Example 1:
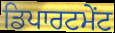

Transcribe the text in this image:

ਡਿਪਾਰਟਮੇਂਟ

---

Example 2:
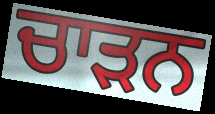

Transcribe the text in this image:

ਚਾੜਨ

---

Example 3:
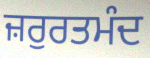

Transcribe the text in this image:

ਜ਼ਰੁਰਤਮੰਦ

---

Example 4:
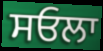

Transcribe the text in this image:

ਸਓਲਾ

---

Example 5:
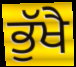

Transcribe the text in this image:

ਭੁੱਖੈ